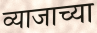
व्याजाच्या